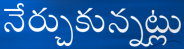
నేర్చుకున్నట్లు